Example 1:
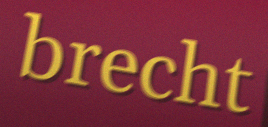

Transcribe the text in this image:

brecht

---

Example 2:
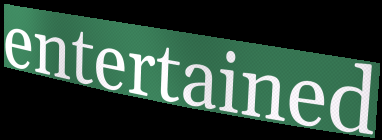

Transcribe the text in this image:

entertained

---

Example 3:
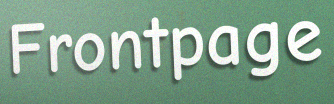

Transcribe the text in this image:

Frontpage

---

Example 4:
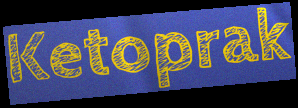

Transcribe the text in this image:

Ketoprak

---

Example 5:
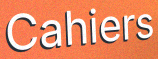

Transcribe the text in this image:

Cahiers